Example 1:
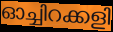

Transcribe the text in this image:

ഓച്ചിറക്കളി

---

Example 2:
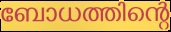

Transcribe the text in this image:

ബോധത്തിന്റെ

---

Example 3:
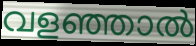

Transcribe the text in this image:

വളഞ്ഞാൽ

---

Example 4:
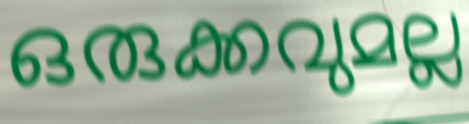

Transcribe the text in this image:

ഒരുക്കവുമല്ല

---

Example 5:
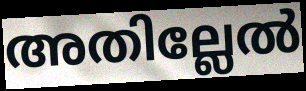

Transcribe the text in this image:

അതില്ലേൽ